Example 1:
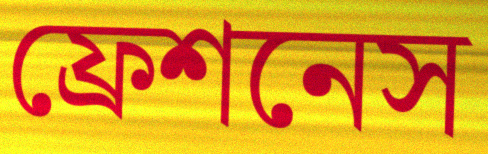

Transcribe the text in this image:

ফ্রেশনেস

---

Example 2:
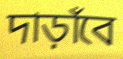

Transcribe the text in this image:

দাড়াঁবে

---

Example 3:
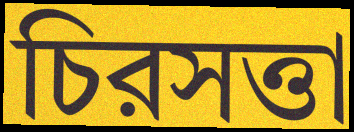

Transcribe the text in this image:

চিরসত্তা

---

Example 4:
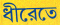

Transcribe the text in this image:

ধীরেতে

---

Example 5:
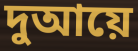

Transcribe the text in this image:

দুআয়ে